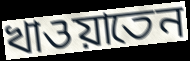
খাওয়াতেন